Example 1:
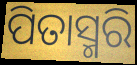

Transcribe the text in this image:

ପିତାସ୍ମରି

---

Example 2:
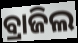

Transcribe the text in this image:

ବ୍ରାଜିଲ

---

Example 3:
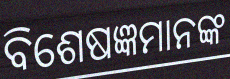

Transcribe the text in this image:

ବିଶେଷଜ୍ଞମାନଙ୍କ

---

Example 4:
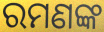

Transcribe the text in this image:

ରମଣଙ୍କ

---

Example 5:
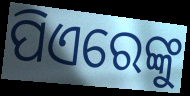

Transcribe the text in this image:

ପିଏରେଙ୍କୁ